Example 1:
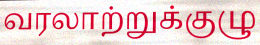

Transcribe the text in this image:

வரலாற்றுக்குழு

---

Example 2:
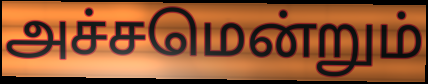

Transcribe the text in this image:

அச்சமென்றும்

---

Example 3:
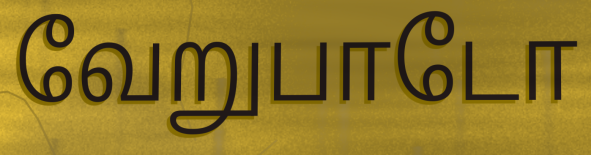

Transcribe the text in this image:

வேறுபாடோ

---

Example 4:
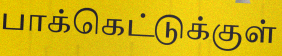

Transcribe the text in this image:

பாக்கெட்டுக்குள்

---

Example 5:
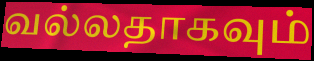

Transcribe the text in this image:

வல்லதாகவும்